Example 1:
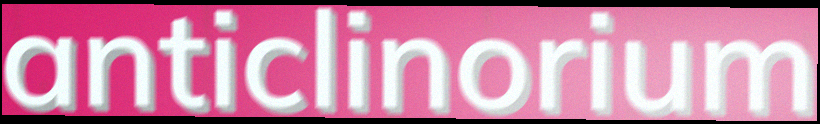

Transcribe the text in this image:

anticlinorium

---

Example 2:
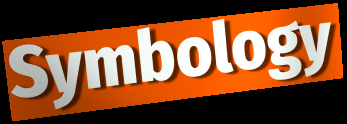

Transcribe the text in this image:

Symbology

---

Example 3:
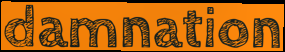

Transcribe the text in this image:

damnation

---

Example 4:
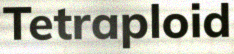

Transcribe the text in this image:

Tetraploid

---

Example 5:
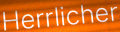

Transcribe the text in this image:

Herrlicher